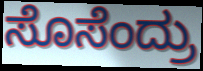
ಸೊಸೆಂದ್ರು